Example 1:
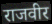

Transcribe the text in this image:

राजवीर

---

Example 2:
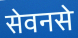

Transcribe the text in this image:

सेवनसे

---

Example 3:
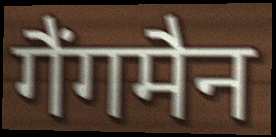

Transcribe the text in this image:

गैंगमैन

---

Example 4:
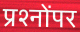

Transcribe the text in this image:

प्रश्नोंपर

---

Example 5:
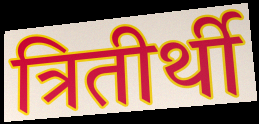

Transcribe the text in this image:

त्रितीर्थी